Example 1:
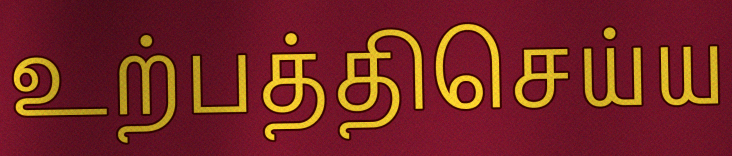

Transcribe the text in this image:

உற்பத்திசெய்ய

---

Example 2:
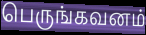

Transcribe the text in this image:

பெருங்கவனம்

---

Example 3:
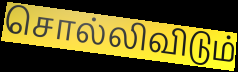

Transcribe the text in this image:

சொல்லிவிடும்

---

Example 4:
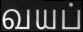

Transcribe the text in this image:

வயப்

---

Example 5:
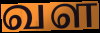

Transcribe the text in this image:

வள